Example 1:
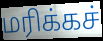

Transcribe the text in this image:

மரிக்கச்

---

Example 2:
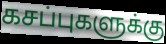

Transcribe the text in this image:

கசப்புகளுக்கு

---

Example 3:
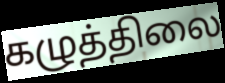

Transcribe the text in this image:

கழுத்திலை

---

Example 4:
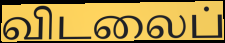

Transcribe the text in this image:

விடலைப்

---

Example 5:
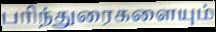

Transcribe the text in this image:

பரிந்துரைகளையும்